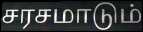
சரசமாடும்